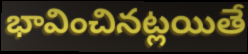
భావించినట్లయితే